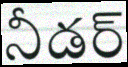
నీడర్